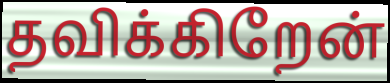
தவிக்கிறேன்